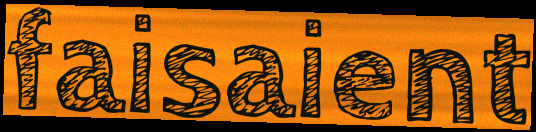
faisaient